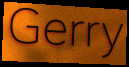
Gerry